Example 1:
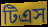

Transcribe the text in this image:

টিএস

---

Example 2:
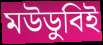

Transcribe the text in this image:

মউডুবিই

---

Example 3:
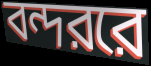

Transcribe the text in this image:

বন্দররে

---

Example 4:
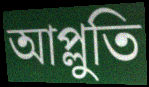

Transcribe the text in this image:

আপ্লুতি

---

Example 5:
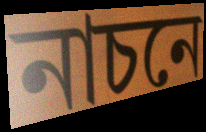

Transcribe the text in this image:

নাচনে